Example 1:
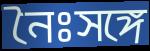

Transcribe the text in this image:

নৈঃসঙ্গে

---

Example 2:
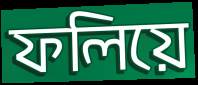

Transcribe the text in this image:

ফলিয়ে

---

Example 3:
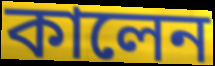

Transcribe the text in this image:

কালেন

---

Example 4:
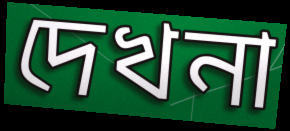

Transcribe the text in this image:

দেখনা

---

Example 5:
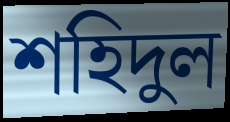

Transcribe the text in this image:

শহিদুল